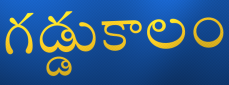
గడ్డుకాలం